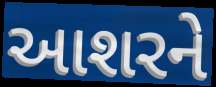
આશરને